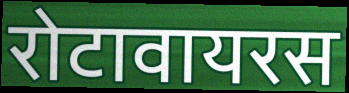
रोटावायरस